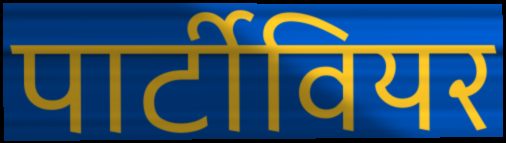
पार्टीवियर